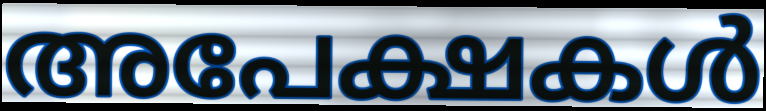
അപേക്ഷകൾ